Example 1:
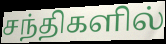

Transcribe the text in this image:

சந்திகளில்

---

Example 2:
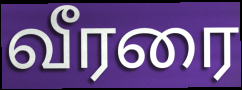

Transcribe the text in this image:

வீரரை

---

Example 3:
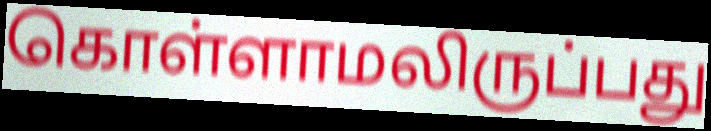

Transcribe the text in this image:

கொள்ளாமலிருப்பது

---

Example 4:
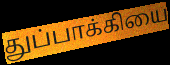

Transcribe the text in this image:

துப்பாக்கியை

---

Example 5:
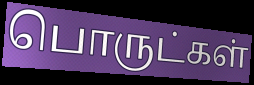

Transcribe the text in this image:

பொருட்கள்